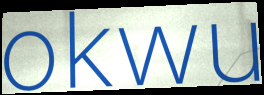
okwu